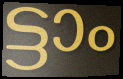
ട്ടാം